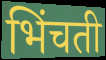
भिंचती